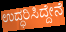
ಉದ್ಧರಿಸಿದ್ದೇನೆ